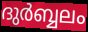
ദുർബ്ബലം